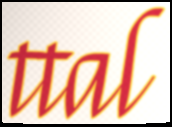
ttal